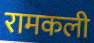
रामकली